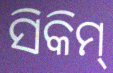
ସିକିମ୍